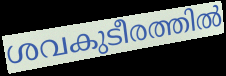
ശവകുടീരത്തിൽ